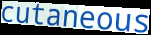
cutaneous